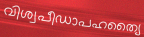
വിശ്വപീഡാപഹത്യൈ